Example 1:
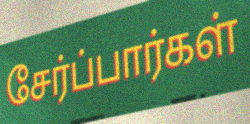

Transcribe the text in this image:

சேர்ப்பார்கள்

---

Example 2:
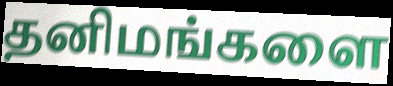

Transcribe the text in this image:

தனிமங்களை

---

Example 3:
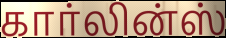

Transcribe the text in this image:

கார்லின்ஸ்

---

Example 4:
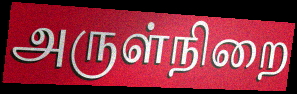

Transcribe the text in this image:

அருள்நிறை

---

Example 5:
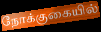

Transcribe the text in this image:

நோக்குகையில்